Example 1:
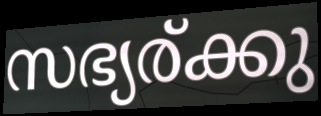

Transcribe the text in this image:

സഭ്യര്ക്കു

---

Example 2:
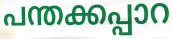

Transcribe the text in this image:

പന്തക്കപ്പാറ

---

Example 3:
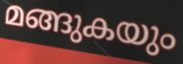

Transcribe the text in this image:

മങ്ങുകയും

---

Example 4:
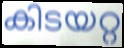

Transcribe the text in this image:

കിടയറ്റ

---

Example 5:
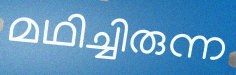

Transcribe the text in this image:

മഥിച്ചിരുന്ന